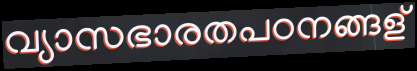
വ്യാസഭാരതപഠനങ്ങള്